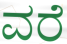
ವರೆ